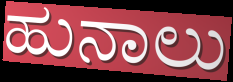
ಹುನಾಲು